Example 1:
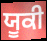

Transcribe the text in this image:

ਯੂਕੀ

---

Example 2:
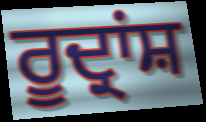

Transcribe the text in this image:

ਰੂਦ੍ਰਾਂਸ਼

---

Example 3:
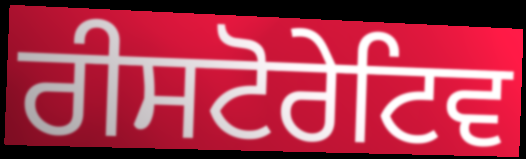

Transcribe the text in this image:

ਰੀਸਟੋਰੇਟਿਵ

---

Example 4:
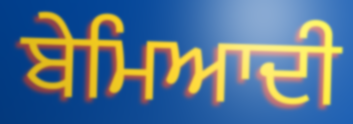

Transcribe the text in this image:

ਬੇਮਿਆਦੀ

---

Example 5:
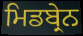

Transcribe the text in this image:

ਮਿਡਬ੍ਰੇਨ